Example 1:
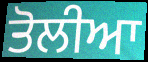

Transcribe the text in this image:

ਤੋਲੀਆ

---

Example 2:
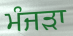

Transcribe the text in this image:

ਮੰਜੜਾ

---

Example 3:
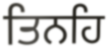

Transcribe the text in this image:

ਤਿਨਹਿ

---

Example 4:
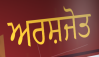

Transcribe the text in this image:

ਅਰਸ਼ਜੋਤ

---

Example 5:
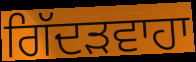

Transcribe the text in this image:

ਗਿੱਦੜਵਾਹਾ